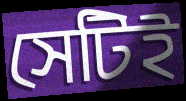
সেটিই